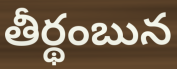
తీర్థంబున